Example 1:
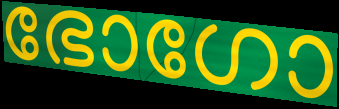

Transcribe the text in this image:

ഭോഗോ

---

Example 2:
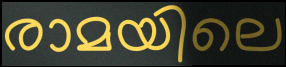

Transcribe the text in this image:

രാമയിലെ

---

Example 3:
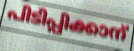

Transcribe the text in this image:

പിടിപ്പിക്കാന്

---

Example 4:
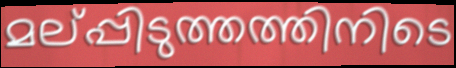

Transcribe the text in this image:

മല്പ്പിടുത്തത്തിനിടെ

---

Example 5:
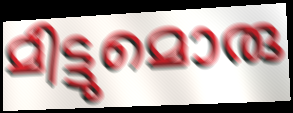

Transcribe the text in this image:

മീട്ടുമൊരു